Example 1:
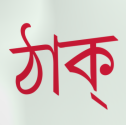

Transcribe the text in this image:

ঠাক্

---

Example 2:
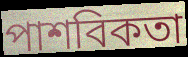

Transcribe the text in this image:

পাশবিকতা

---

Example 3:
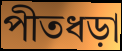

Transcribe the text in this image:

পীতধড়া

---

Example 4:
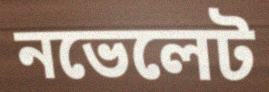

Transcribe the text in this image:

নভেলেট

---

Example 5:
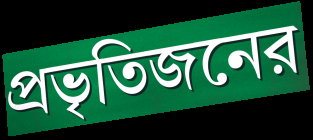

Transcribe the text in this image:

প্রভৃতিজনের